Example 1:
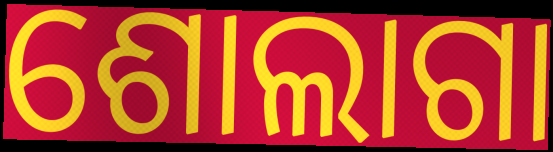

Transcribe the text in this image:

ଶୋଲାଗା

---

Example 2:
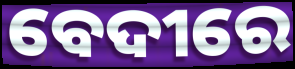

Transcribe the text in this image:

ବେଦୀରେ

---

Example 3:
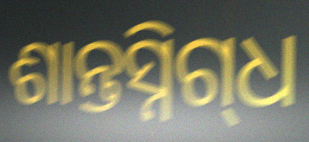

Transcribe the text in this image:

ଶାନ୍ତସ୍ନିଗ୍‌ଧ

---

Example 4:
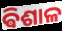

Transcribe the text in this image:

ଵିଶାଳ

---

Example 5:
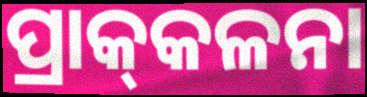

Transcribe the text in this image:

ପ୍ରାକ୍‌କଳନା